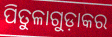
ପିତୁଳାଗୁଡ଼ାକର